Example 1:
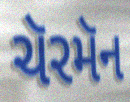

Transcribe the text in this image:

ચૅરમૅન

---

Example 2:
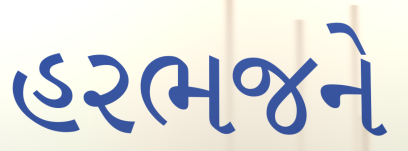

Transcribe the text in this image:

હરભજને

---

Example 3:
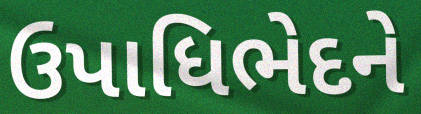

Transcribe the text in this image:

ઉપાધિભેદને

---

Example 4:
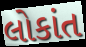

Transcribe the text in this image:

લોકાંત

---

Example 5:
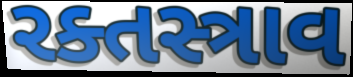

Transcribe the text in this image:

રક્તસ્ત્રાવ